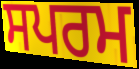
ਸਪਰਮ